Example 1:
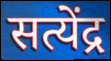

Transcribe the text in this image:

सत्येंद्र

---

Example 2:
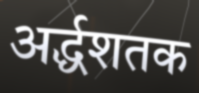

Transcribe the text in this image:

अर्द्धशतक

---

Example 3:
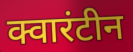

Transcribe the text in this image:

क्वारंटीन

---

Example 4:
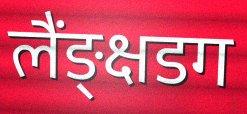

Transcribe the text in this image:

लैंङ्क्षडग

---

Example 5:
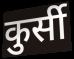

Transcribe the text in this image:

कुर्सी